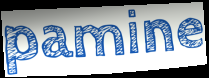
pamine